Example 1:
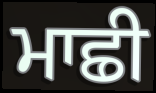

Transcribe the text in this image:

ਮਾਛੀ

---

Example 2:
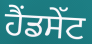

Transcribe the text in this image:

ਹੈਂਡਸੇੱਟ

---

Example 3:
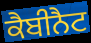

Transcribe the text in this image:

ਕੈਬੀਨੈਟ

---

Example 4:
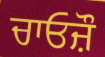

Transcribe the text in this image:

ਚਾਓਜ਼ੌ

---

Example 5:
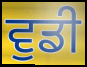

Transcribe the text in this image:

ਵੁਡੀ